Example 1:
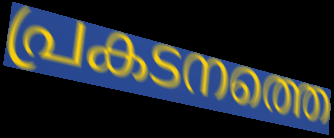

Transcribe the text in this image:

പ്രകടനത്തെ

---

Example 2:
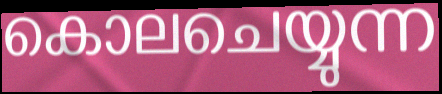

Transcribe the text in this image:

കൊലചെയ്യുന്ന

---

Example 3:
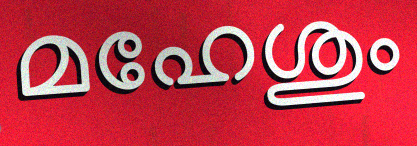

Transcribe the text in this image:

മഹേശും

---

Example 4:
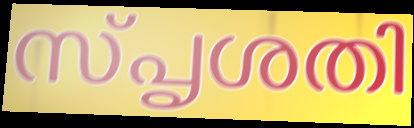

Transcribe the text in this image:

സ്പൃശതി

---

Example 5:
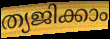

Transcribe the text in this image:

ത്യജിക്കാം